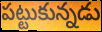
పట్టుకున్నడు